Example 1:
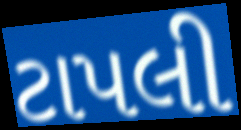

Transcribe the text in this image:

ટાપલી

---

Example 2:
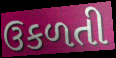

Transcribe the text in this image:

ઉકળતી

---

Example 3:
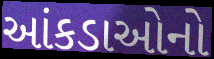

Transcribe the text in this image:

આંકડાઓનો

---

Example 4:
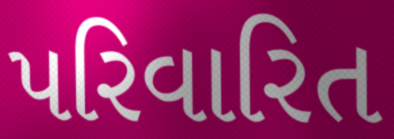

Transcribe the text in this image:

પરિવારિત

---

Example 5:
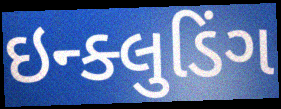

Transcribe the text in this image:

ઇન્ક્લુડિંગ